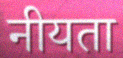
नीयता